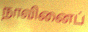
நாவினைப்